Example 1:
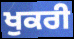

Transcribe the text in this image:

ਖੁਕਰੀ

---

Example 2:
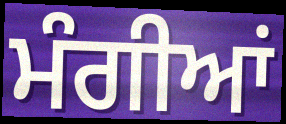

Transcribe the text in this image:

ਮੰਗੀਆਂ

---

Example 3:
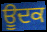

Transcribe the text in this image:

ਊਦਕ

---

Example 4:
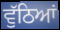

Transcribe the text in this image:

ਵੁੱਠਿਆਂ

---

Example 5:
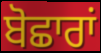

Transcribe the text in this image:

ਬੋਛਾਰਾਂ